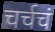
चर्चचं